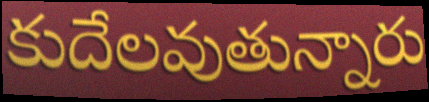
కుదేలవుతున్నారు